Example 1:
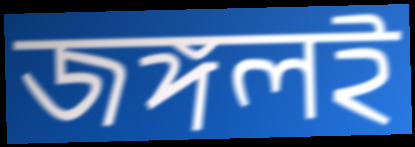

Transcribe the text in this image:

জঙ্গলই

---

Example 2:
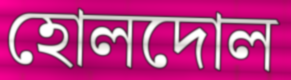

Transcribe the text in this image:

হোলদোল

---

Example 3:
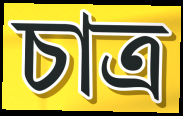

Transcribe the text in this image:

চাত্র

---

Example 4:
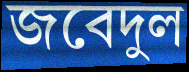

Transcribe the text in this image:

জবেদুল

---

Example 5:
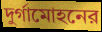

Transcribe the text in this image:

দুর্গামোহনের